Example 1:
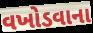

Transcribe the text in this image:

વખોડવાના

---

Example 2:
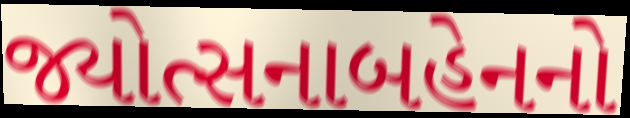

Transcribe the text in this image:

જ્યોત્સનાબહેનનો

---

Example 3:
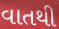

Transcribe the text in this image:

વાતથી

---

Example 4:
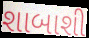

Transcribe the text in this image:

શાબાશી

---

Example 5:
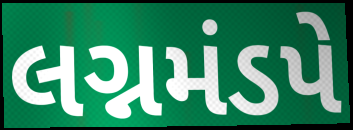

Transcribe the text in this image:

લગ્નમંડપે